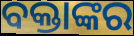
ବକ୍ତାଙ୍କର